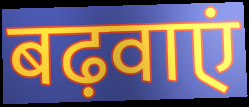
बढ़वाएं